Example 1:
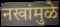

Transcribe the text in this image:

नखांमुळे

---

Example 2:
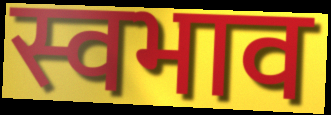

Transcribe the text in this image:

स्वभाव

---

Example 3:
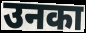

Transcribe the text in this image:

उनका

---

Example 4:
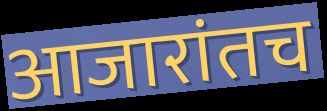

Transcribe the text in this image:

आजारांतच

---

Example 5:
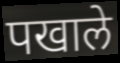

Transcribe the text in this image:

पखाले